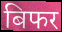
बिफर